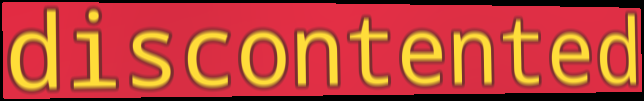
discontented